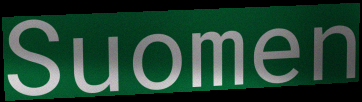
Suomen